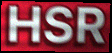
HSR